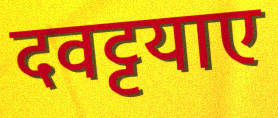
दवट्टयाए